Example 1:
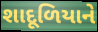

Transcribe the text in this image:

શાદૂળિયાને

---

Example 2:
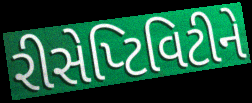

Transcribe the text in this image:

રીસેપ્ટિવિટીને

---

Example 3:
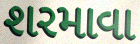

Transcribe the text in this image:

શરમાવા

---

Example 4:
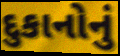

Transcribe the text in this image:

દુકાનોનું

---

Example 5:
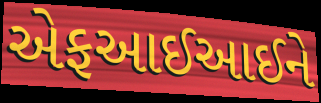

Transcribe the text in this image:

એફઆઈઆઈને